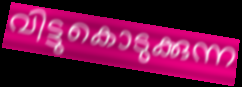
വിട്ടുകൊടുക്കുന്ന